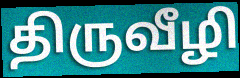
திருவீழி